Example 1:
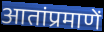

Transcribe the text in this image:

आतांप्रमाणें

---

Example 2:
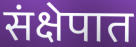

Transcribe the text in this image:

संक्षेपात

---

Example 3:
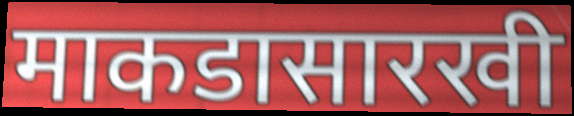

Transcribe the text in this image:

माकडासारखी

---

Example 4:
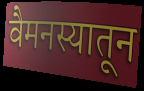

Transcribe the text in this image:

वैमनस्यातून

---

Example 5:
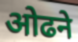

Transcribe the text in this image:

ओढने